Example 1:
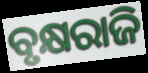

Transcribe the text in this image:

ବୃକ୍ଷରାଜି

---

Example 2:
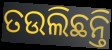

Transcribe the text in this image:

ତଉଲିଛନ୍ତି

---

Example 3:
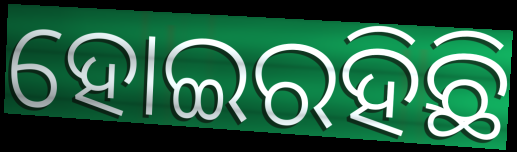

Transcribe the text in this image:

ହୋଇରହିଛି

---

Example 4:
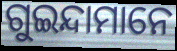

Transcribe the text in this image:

ଗୁଇନ୍ଦାମାନେ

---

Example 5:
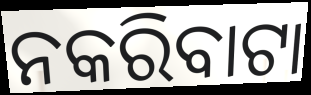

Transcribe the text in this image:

ନକରିବାଟା